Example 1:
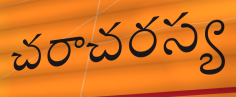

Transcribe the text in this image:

చరాచరస్య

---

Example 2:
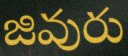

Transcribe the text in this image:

జివురు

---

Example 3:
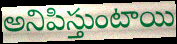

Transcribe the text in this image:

అనిపిస్తుంటాయి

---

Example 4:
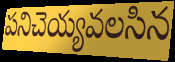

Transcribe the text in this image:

పనిచెయ్యవలసిన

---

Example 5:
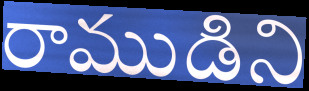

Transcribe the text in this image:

రాముడిని